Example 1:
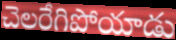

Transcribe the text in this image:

చెలరేగిపోయాడు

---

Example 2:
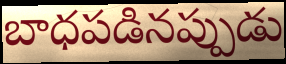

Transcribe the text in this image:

బాధపడినప్పుడు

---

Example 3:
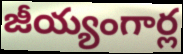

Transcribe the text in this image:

జీయ్యంగార్ల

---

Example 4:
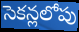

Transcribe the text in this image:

సెకన్లలోపు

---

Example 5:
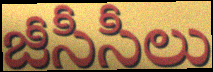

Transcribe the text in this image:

జీసీసీలు